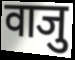
वाजु